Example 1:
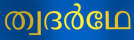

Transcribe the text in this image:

ത്വദർഥേ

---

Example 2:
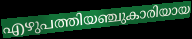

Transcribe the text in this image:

എഴുപത്തിയഞ്ചുകാരിയായ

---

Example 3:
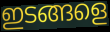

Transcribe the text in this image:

ഇടങ്ങളെ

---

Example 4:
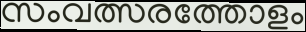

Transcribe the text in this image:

സംവത്സരത്തോളം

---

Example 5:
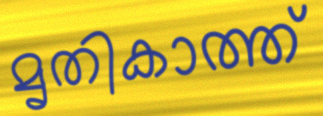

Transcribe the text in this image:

മൃതികാത്ത്